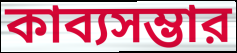
কাব্যসম্ভার